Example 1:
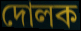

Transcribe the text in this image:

দোলক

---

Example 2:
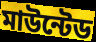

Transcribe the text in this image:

মাউন্টেড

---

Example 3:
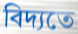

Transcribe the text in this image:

বিদ্যতে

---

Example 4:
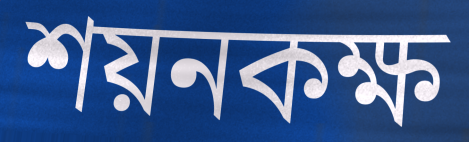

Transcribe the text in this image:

শয়নকক্ষ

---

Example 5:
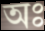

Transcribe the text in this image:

অঃ